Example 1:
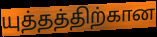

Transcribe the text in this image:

யுத்தத்திற்கான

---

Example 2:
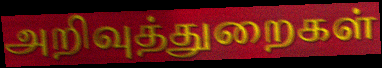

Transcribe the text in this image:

அறிவுத்துறைகள்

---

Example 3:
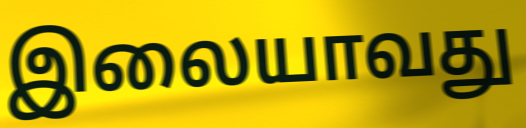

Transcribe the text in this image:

இலையாவது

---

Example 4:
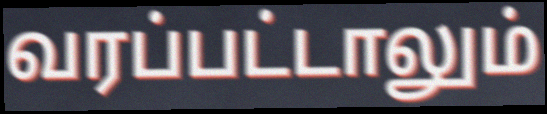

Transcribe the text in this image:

வரப்பட்டாலும்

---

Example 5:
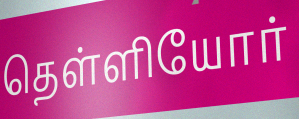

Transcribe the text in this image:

தெள்ளியோர்